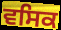
ਵਸਿਕ